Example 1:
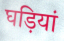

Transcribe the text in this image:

घड़ियां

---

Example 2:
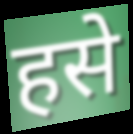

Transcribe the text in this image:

हसे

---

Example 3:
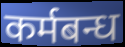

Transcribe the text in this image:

कर्मबन्ध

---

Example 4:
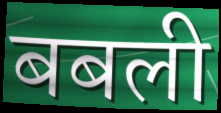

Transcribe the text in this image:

बबली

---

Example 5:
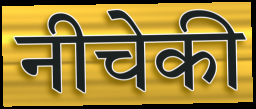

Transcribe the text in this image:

नीचेकी